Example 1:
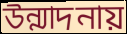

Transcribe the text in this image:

উন্মাদনায়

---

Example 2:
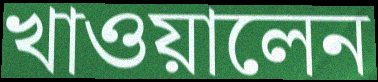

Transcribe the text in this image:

খাওয়ালেন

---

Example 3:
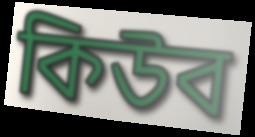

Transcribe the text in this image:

কিউব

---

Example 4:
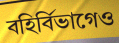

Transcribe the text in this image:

বহির্বিভাগেও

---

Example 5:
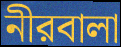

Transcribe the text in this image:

নীরবালা